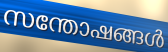
സന്തോഷങ്ങൾ